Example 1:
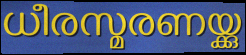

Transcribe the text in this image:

ധീരസ്മരണയ്ക്കു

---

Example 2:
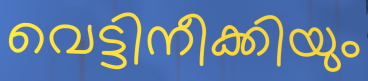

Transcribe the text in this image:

വെട്ടിനീക്കിയും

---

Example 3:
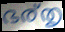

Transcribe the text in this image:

ഭര്തൃ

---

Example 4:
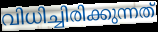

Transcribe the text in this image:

വിധിച്ചിരിക്കുന്നത്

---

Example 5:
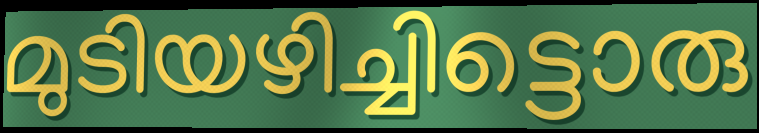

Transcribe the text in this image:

മുടിയഴിച്ചിട്ടൊരു